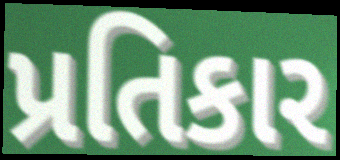
પ્રતિકાર